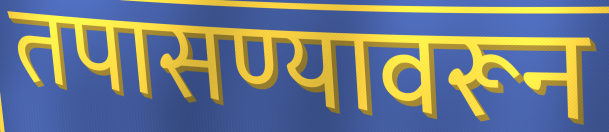
तपासण्यावरून